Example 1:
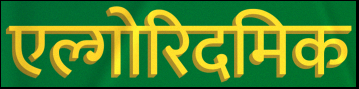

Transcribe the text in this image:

एल्गोरिदमिक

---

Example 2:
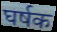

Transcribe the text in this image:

घर्षक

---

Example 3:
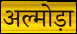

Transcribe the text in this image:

अल्मोड़ा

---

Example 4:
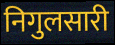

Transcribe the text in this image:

निगुलसारी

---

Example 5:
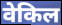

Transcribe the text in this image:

वेकिल